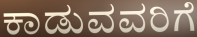
ಕಾಡುವವರಿಗೆ